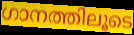
ഗാനത്തിലൂടെ